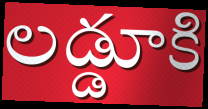
లడ్డూకి